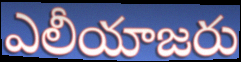
ఎలీయాజరు